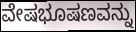
ವೇಷಭೂಷಣವನ್ನು